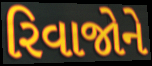
રિવાજોને